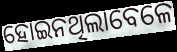
ହୋଇନଥିଲାବେଳେ